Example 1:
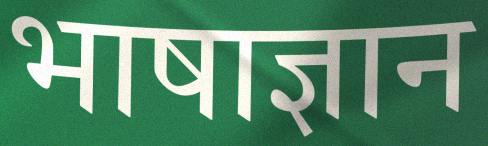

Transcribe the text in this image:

भाषाज्ञान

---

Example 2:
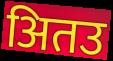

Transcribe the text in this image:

अितउ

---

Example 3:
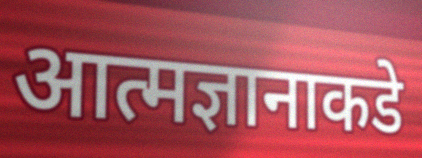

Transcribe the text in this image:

आत्मज्ञानाकडे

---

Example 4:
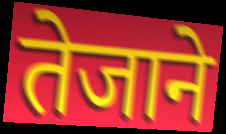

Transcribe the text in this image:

तेजाने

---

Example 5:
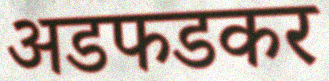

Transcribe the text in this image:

अडफडकर